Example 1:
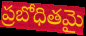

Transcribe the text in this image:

ప్రబోధితమై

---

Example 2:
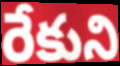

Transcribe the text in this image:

రేకుని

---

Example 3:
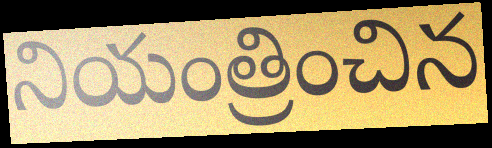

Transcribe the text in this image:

నియంత్రించిన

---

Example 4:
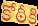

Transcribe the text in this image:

కోఠీకి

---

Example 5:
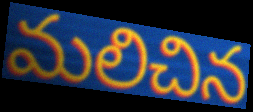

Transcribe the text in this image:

మలిచిన